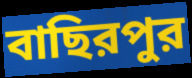
বাছিরপুর